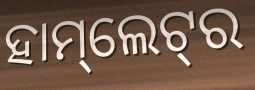
ହାମ୍‌ଲେଟ୍‌ର